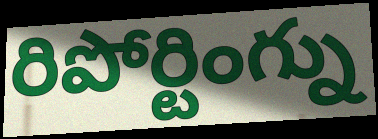
రిపోర్టింగ్ను